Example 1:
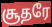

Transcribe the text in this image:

சூதரே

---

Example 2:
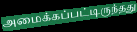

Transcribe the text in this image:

அமைக்கப்பட்டிருந்தது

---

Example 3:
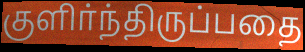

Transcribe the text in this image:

குளிர்ந்திருப்பதை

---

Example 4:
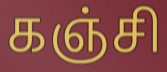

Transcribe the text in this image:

கஞ்சி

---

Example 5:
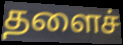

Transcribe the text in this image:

தளைச்